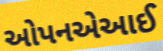
ઓપનએઆઈ